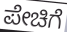
ಪೇಚಿಗೆ